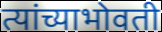
त्यांच्याभोवती